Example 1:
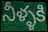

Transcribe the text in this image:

నీళ్ళకి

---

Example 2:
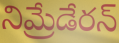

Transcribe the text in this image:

నిమ్రేడేరన్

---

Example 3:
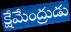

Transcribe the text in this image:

క్షేమేంద్రుడు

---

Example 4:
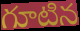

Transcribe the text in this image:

గూటిన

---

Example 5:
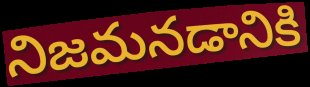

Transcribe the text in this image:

నిజమనడానికి